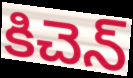
కిచెన్